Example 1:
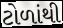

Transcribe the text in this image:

ટોળાંથી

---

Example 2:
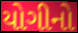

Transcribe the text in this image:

યોગીનો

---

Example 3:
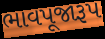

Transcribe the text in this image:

ભાવપૂજારૂપ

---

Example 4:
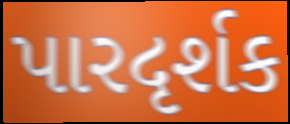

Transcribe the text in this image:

પારદૃર્શક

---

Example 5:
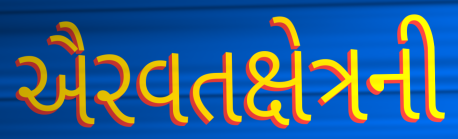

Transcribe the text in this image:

ઐરવતક્ષેત્રની